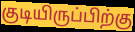
குடியிருப்பிற்கு